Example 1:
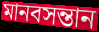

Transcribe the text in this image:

মানবসন্তান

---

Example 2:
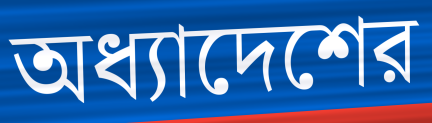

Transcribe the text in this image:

অধ্যাদেশের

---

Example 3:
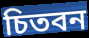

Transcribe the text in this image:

চিতবন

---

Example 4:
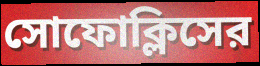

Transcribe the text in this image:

সোফোক্লিসের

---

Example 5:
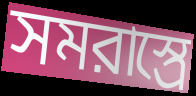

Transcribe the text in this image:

সমরাস্ত্রে